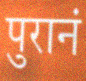
पुरानं